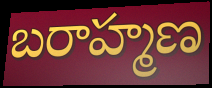
బరాహ్మణ